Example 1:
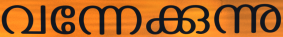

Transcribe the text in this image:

വന്നേക്കുന്നു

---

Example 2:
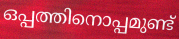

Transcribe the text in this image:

ഒപ്പത്തിനൊപ്പമുണ്ട്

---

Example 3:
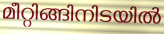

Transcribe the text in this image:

മീറ്റിങ്ങിനിടയിൽ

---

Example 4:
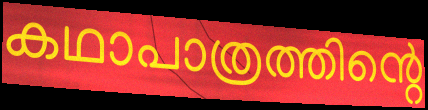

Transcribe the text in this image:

കഥാപാത്രത്തിന്റെ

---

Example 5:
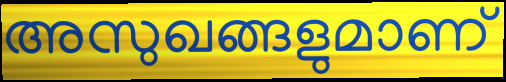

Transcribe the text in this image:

അസുഖങ്ങളുമാണ്